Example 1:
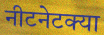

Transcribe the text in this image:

नीटनेटक्‍या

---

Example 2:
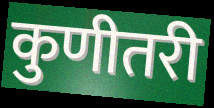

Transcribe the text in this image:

कुणीतरी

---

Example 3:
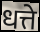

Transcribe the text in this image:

धत्ते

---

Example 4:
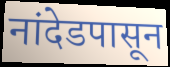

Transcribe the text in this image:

नांदेडपासून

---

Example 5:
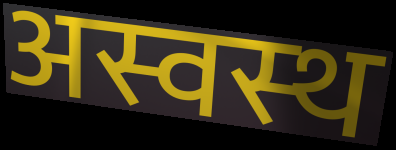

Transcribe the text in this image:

अस्वस्थ